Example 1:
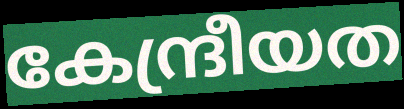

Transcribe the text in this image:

കേന്ദ്രീയത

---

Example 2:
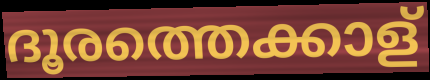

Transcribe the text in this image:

ദൂരത്തെക്കാള്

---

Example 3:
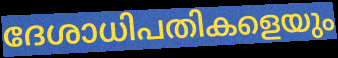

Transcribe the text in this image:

ദേശാധിപതികളെയും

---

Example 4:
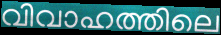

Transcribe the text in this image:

വിവാഹത്തിലെ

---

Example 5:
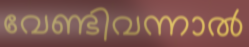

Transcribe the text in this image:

വേണ്ടിവന്നാൽ